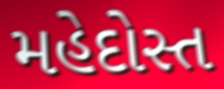
મહેદોસ્ત